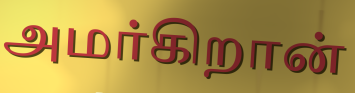
அமர்கிறான்